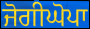
ਜੋਗੀਘੋਪਾ